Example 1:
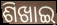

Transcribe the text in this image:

ଶିଖାଇ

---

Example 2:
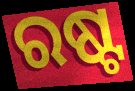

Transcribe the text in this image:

ରଷ୍ଟ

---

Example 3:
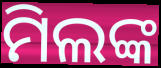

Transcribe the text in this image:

ମିଲଙ୍କ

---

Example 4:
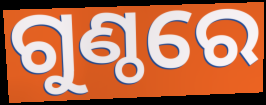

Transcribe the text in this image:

ଗୁଣ୍ଠରେ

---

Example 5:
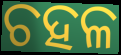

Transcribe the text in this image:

ଚହଳ